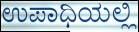
ಉಪಾಧಿಯಲ್ಲಿ